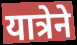
यात्रेने